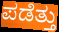
ಪಡೆತ್ತು